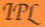
IPL